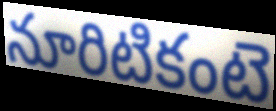
నూరిటికంటె